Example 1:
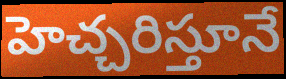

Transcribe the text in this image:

హెచ్చరిస్తూనే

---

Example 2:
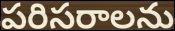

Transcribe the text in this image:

పరిసరాలను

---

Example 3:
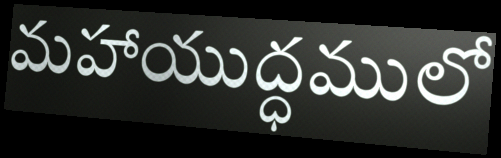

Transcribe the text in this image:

మహాయుద్ధములో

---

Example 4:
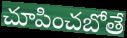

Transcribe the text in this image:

చూపించబోతే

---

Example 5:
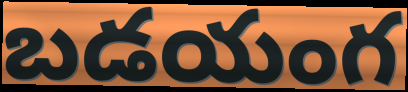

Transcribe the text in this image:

బడయంగ